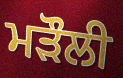
ਮੜੌਲੀ